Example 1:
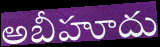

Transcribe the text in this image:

అబీహూదు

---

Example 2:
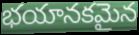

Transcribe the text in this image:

భయానకమైన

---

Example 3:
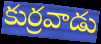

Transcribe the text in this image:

కుర్రవాడు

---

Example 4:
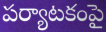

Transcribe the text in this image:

పర్యాటకంపై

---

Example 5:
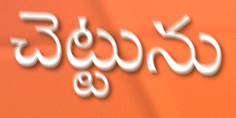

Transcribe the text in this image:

చెట్టును